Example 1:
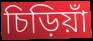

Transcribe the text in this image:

চিড়িয়াঁ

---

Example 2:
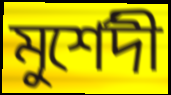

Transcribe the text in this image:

মুর্শেদী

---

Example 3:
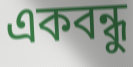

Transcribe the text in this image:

একবন্ধু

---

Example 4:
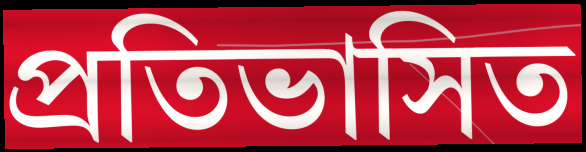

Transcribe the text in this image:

প্রতিভাসিত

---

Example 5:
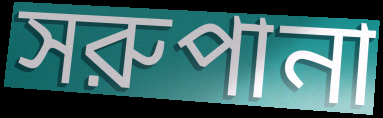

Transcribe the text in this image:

সরুপানা